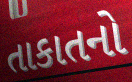
તાકાતનો